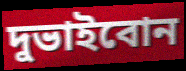
দুভাইবোন